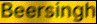
Beersingh